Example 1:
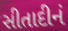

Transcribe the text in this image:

સીતાદીનં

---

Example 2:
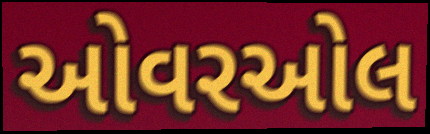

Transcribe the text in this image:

ઓવરઓલ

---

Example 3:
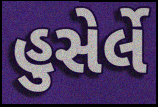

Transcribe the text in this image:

હુસેર્લે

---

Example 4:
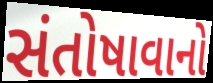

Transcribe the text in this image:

સંતોષાવાનો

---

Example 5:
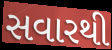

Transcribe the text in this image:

સવારથી